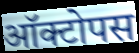
ऑक्टोपस